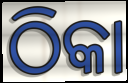
ଠିକା